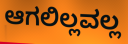
ಆಗಲಿಲ್ಲವಲ್ಲ